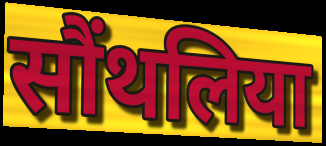
सौंथलिया